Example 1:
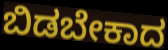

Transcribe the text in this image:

ಬಿಡಬೇಕಾದ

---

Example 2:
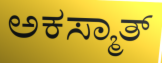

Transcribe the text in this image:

ಅಕಸ್ಮಾತ್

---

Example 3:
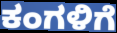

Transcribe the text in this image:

ಕಂಗಳಿಗೆ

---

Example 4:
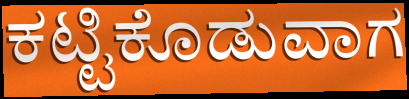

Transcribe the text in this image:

ಕಟ್ಟಿಕೊಡುವಾಗ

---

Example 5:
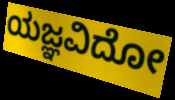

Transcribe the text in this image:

ಯಜ್ಞವಿದೋ